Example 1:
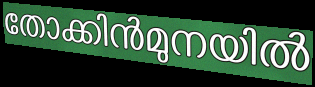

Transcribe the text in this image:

തോക്കിൻമുനയിൽ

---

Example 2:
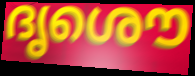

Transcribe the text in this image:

ദൃശൌ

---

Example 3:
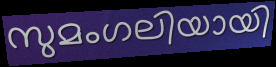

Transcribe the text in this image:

സുമംഗലിയായി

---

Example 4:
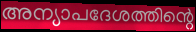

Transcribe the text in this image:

അന്യാപദേശത്തിന്റെ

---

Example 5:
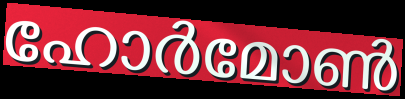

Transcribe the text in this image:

ഹോർമോൺ